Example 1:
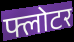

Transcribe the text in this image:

फ्लोटर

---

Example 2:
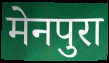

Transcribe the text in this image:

मेनपुरा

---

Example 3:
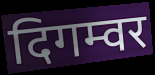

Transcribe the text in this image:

दिगम्वर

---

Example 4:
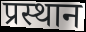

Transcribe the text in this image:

प्रस्थान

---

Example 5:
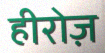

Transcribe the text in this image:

हीरोज़